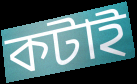
কটাই